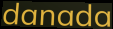
danada